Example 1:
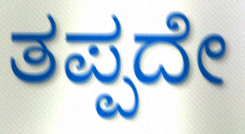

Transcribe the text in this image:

ತಪ್ಪದೇ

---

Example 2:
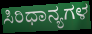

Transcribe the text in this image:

ಸಿರಿಧಾನ್ಯಗಳ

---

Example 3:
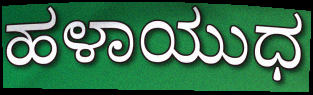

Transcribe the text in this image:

ಹಳಾಯುಧ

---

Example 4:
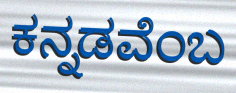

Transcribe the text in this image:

ಕನ್ನಡವೆಂಬ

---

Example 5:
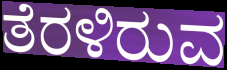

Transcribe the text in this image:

ತೆರಳಿರುವ